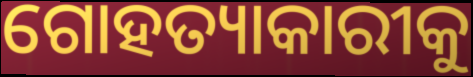
ଗୋହତ୍ୟାକାରୀକୁ